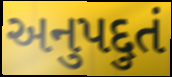
અનુપદ્દુતં